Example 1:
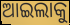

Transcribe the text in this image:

ଆଇଲାକୁ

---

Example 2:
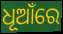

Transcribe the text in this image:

ଧୂଆଁରେ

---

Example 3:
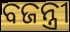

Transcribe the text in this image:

ବଜନ୍ତ୍ରୀ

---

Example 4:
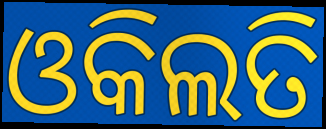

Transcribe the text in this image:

ଓକିଲତି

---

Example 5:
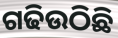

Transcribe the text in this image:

ଗଢିଉଠିଛି